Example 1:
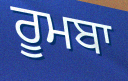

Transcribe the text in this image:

ਰੂਮਬਾ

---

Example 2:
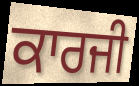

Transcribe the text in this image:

ਕਾਰਜੀ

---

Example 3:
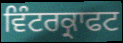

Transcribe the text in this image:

ਵਿੰਟਰਕ੍ਰਾਫਟ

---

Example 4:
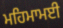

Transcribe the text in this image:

ਮਹਿਮਾਮਈ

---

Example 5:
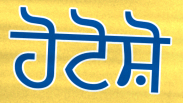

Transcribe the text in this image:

ਹੋਟੋਸ਼ੋ